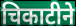
चिकाटीने